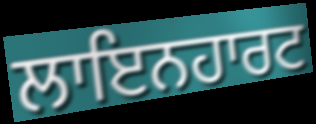
ਲਾਇਨਹਾਰਟ